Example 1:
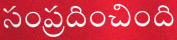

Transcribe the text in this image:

సంప్రదించింది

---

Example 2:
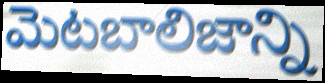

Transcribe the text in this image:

మెటబాలిజాన్ని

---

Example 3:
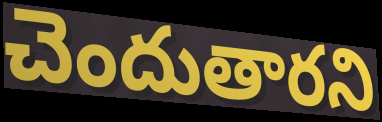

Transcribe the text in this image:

చెందుతారని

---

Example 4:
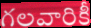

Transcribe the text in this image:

గలవారికీ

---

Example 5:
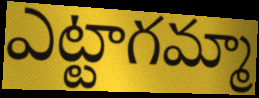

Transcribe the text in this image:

ఎట్టాగమ్మా